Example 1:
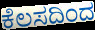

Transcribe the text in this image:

ಕೆಲಸದಿಂದ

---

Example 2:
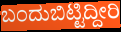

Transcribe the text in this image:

ಬಂದುಬಿಟ್ಟಿದ್ದೀರಿ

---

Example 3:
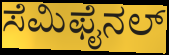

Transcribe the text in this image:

ಸೆಮಿಫೈನಲ್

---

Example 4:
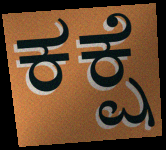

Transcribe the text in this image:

ಕಕ್ಷೆ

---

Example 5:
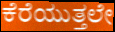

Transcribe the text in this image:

ಕೆರೆಯುತ್ತಲೇ